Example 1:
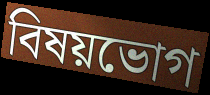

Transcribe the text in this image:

বিষয়ভোগ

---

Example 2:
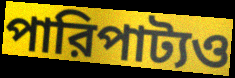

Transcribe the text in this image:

পারিপাট্যও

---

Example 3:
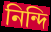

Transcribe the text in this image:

নিন্দি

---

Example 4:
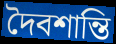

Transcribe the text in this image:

দৈবশান্তি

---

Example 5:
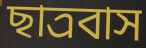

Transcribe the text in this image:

ছাত্রবাস